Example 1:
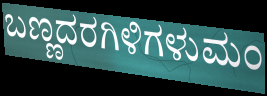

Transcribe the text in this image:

ಬಣ್ಣದರಗಿಳಿಗಳುಮಂ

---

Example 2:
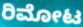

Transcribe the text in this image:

ರಿಮೋಟ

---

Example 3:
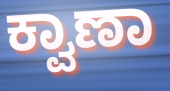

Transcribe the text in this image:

ಕ್ವಾಣಾ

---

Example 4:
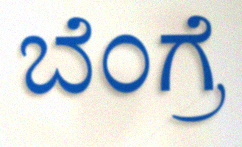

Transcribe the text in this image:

ಬೆಂಗ್ರೆ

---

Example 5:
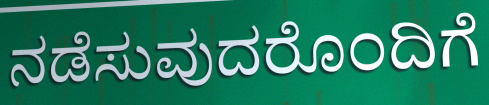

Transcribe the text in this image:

ನಡೆಸುವುದರೊಂದಿಗೆ